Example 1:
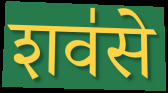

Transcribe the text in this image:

शव॑से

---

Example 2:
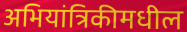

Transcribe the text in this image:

अभियांत्रिकीमधील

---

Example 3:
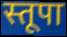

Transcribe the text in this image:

स्तूपा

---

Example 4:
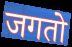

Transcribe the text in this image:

जगतो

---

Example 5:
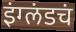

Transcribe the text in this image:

इंग्लंडचं